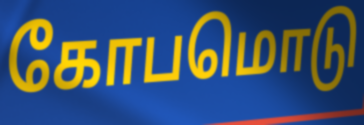
கோபமொடு